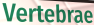
Vertebrae